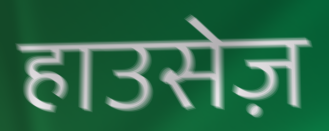
हाउसेज़